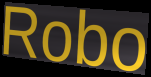
Robo